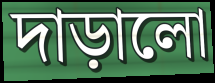
দাড়ালো